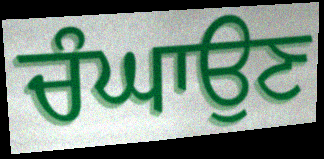
ਚੰਘਾਉਣ